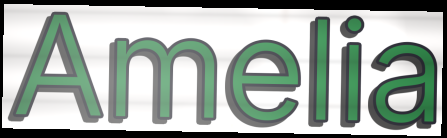
Amelia